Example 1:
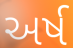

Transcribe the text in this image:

અર્ષ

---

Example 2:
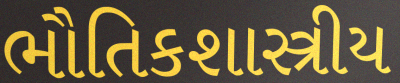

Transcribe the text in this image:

ભૌતિકશાસ્ત્રીય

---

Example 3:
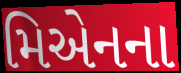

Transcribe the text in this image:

મિએનના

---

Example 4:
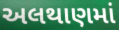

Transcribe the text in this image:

અલથાણમાં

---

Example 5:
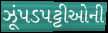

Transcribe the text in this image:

ઝૂંપડપટ્ટીઓની